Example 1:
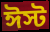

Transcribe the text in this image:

ঈস্ট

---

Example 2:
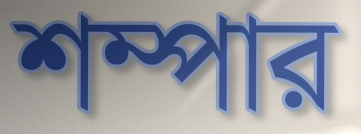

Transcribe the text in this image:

শম্পার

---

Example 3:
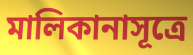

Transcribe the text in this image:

মালিকানাসূত্রে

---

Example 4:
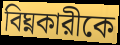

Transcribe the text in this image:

বিঘ্নকারীকে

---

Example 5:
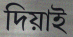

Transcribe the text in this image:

দিয়াই